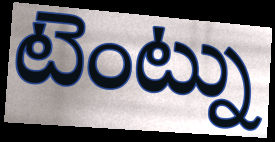
టెంట్ను